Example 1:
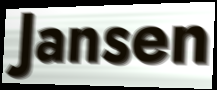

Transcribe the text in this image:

Jansen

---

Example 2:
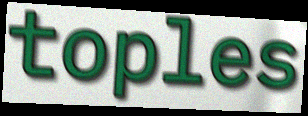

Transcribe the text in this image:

toples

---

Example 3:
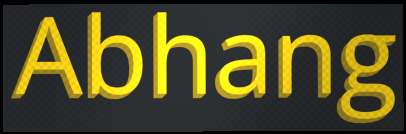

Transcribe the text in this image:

Abhang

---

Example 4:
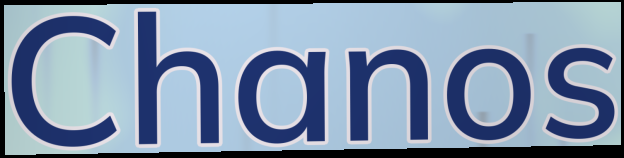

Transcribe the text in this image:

Chanos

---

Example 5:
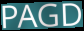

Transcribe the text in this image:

PAGD